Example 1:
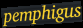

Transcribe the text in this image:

pemphigus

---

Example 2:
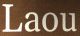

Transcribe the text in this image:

Laou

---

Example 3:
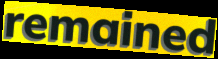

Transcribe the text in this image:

remained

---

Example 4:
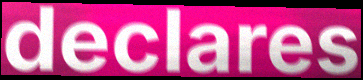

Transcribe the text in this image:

declares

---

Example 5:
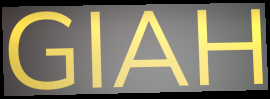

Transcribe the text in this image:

GIAH